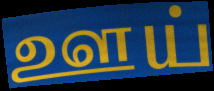
ஊய்